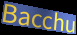
Bacchu